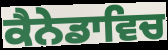
ਕੈਨੇਡਾਵਿਚ